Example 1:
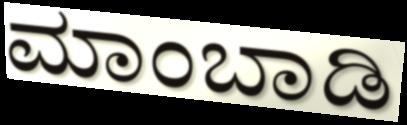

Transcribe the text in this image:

ಮಾಂಬಾಡಿ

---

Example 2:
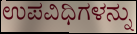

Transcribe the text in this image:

ಉಪವಿಧಿಗಳನ್ನು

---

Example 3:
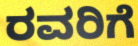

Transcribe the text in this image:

ರವರಿಗೆ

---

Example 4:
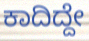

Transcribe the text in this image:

ಕಾದಿದ್ದೇ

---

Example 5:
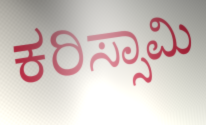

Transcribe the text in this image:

ಕರಿಸ್ಸಾಮಿ